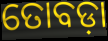
ତୋବଡ଼ା